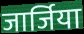
जार्जिया